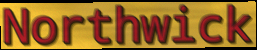
Northwick